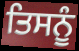
ਤਿਸਨੂੰ